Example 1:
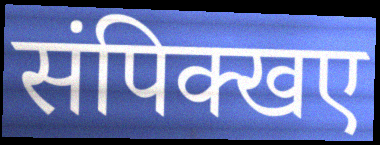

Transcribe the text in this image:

संपिक्खए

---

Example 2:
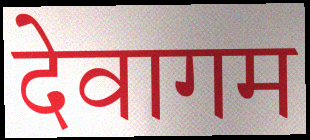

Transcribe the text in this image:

देवागम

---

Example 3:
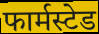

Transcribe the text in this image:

फार्मस्टेड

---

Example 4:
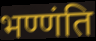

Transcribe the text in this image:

भण्णंति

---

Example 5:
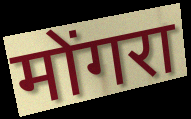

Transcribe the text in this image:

मोंगरा